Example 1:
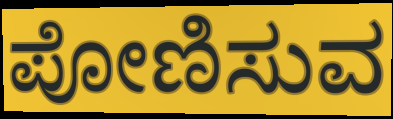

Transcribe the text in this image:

ಪೋಣಿಸುವ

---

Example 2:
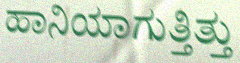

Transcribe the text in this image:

ಹಾನಿಯಾಗುತ್ತಿತ್ತು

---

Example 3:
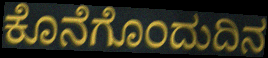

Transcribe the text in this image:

ಕೊನೆಗೊಂದುದಿನ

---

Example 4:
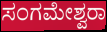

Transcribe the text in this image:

ಸಂಗಮೇಶ್ವರಾ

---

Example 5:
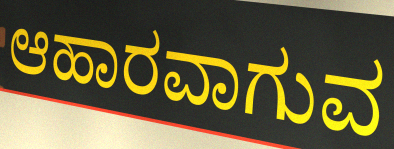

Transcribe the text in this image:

ಆಹಾರವಾಗುವ